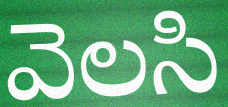
వెలసి